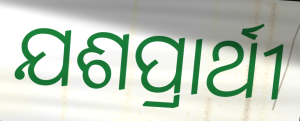
ଯଶପ୍ରାର୍ଥୀ